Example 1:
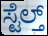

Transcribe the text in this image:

ಸ್ಟೆಲ್ತ್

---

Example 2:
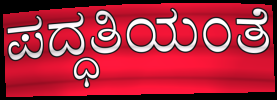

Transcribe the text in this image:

ಪದ್ಧತಿಯಂತೆ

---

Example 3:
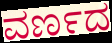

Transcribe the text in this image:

ವರ್ಣದ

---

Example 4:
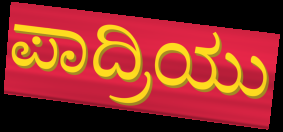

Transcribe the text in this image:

ಪಾದ್ರಿಯು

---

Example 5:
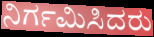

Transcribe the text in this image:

ನಿರ್ಗಮಿಸಿದರು